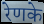
रेणके